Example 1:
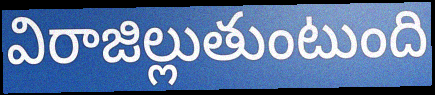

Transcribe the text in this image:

విరాజిల్లుతుంటుంది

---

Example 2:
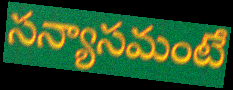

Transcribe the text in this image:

సన్యాసమంటే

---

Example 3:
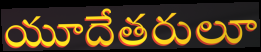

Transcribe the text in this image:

యూదేతరులూ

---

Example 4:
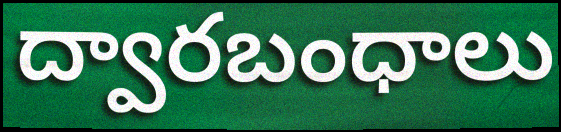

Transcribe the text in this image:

ద్వారబంధాలు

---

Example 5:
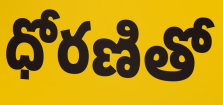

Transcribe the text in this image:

ధోరణితో